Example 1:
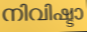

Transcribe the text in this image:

നിവിഷ്ടാ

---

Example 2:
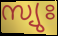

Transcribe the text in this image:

സ്യുഃ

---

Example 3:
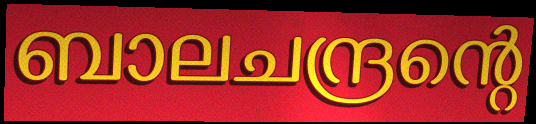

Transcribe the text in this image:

ബാലചന്ദ്രന്റെ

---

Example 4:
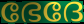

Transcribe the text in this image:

ഭേദേ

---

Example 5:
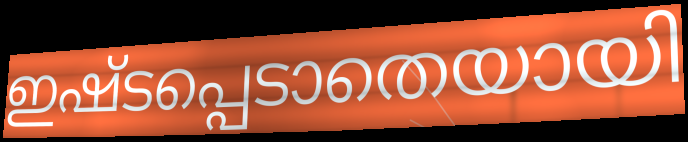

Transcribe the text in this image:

ഇഷ്ടപ്പെടാതെയായി